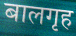
बालगृह